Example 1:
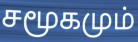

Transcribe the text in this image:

சமூகமும்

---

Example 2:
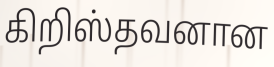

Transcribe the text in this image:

கிறிஸ்தவனான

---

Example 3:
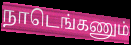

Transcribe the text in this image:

நாடெங்கணும்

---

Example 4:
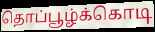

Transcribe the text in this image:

தொப்பூழ்க்கொடி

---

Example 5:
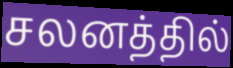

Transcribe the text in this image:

சலனத்தில்